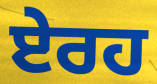
ਏਰਹ